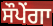
ਸੌਪੇਂਗਾ